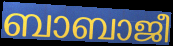
ബാബാജീ